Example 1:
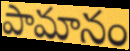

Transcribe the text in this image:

పామానం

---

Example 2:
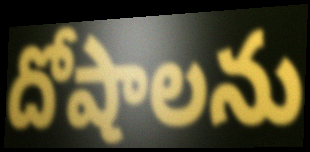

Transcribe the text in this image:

దోషాలను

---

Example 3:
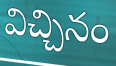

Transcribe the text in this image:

విచ్చినం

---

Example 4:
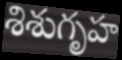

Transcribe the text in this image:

శిశుగృహ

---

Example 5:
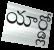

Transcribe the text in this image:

యార్డ్లో